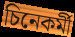
চিনেকৰ্মী